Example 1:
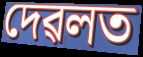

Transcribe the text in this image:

দেৱলত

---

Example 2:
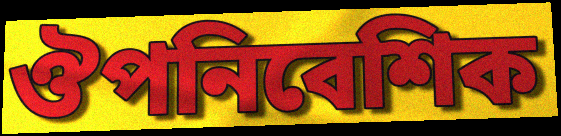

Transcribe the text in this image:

ঔপনিবেশিক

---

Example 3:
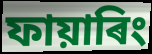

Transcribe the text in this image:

ফায়াৰিং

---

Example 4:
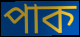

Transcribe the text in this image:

পাক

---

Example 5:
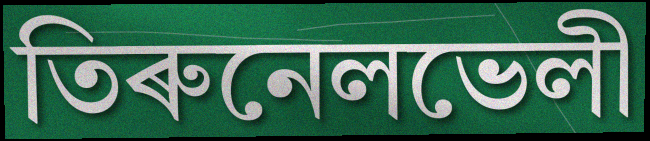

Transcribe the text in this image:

তিৰুনেলভেলী